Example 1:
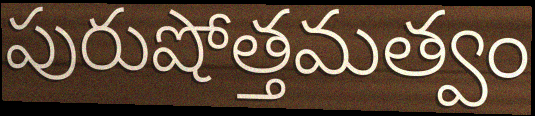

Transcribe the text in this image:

పురుషోత్తమత్వం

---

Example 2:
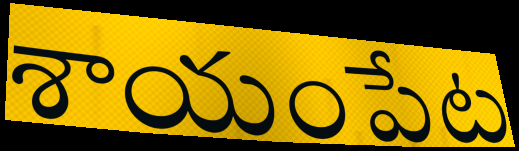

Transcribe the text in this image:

శాయంపేట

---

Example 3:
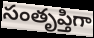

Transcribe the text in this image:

సంతృప్తిగా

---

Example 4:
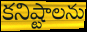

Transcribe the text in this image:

కనిష్టాలను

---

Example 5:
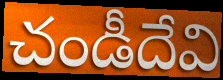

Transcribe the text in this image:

చండీదేవి